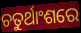
ଚତୁର୍ଥାଂଶରେ